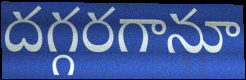
దగ్గరగానూ